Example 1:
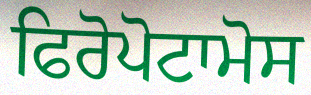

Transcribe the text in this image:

ਫਿਰੋਪੋਟਾਮੋਸ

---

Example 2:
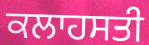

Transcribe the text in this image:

ਕਲਾਹਸਤੀ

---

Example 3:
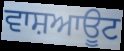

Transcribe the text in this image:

ਵਾਸ਼ਆਊਟ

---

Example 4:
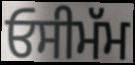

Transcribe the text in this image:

ਓਸੀਮੱਮ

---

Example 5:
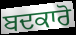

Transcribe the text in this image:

ਬਦਕਾਰੋ